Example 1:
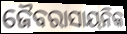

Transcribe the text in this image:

ଜୈବରାସାୟନିକ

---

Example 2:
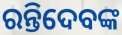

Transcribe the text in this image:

ରନ୍ତିଦେବଙ୍କ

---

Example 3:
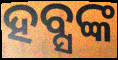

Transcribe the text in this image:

ହବ୍ସଙ୍କ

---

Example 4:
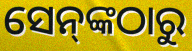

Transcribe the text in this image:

ସେନ୍‌ଙ୍କଠାରୁ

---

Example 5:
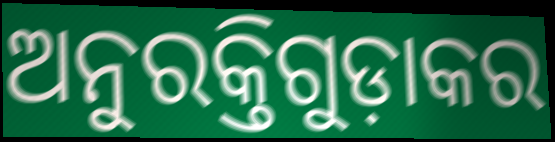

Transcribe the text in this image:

ଅନୁରକ୍ତିଗୁଡ଼ାକର